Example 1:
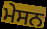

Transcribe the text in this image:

ਮੇਸਨ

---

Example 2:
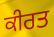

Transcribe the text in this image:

ਕੀਰਤ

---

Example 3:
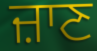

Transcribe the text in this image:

ਜ਼ਾਣ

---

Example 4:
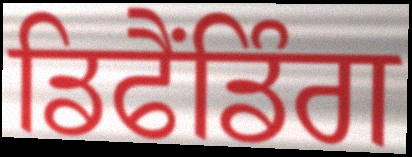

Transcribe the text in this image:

ਡਿਫੈਂਡਿੰਗ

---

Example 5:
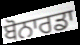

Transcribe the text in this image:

ਬੋਨਾਰਡਾ